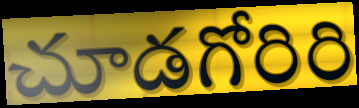
చూడగోరిరి